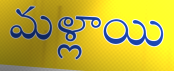
మళ్లాయి